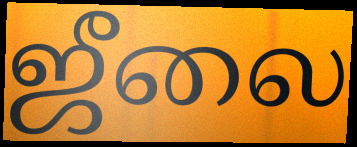
ஜீலை